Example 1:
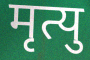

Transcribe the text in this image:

मृत्यु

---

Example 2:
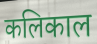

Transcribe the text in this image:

कलिकाल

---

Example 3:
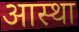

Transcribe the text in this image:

आस्था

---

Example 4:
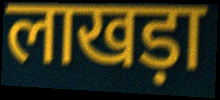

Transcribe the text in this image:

लाखड़ा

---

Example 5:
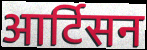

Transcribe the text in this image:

आर्टिसन